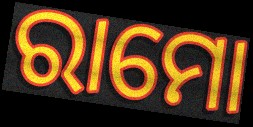
ରାମୋ